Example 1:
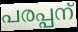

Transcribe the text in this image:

പരപ്പന്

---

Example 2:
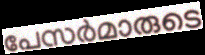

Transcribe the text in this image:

പേസർമാരുടെ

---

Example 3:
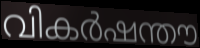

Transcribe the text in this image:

വികർഷന്തൗ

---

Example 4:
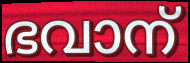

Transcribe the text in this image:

ഭവാന്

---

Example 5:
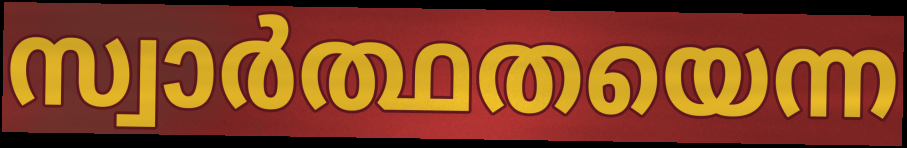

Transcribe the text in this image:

സ്വാർത്ഥതയെന്ന